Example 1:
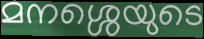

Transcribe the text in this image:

മനശ്ശെയുടെ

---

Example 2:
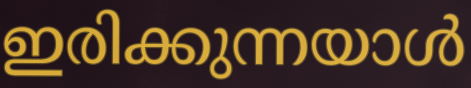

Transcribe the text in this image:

ഇരിക്കുന്നയാൾ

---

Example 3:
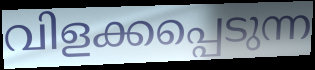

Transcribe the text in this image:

വിളക്കപ്പെടുന്ന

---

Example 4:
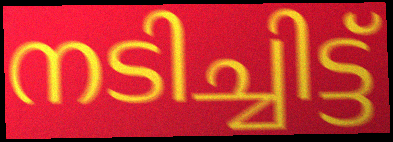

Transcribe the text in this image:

നടിച്ചിട്ട്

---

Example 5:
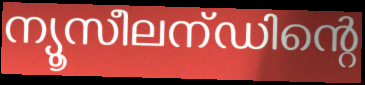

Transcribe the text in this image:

ന്യൂസീലന്ഡിന്റെ